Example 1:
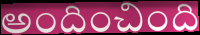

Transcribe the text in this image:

అందించింది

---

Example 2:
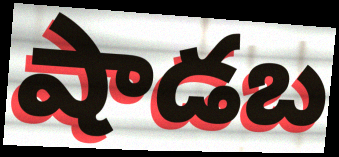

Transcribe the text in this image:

షాడబ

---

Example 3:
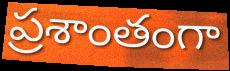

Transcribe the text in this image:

ప్రశాంతంగా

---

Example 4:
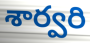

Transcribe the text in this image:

శార్వరి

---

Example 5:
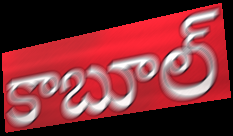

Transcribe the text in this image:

కాబూల్